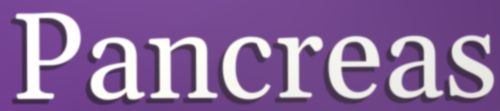
Pancreas